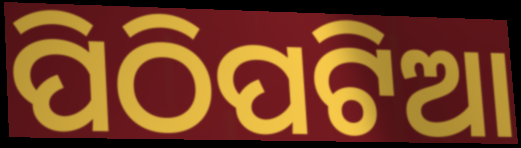
ପିଠିପଟିଆ